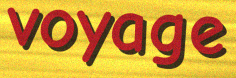
voyage